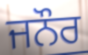
ਜਨੌਰ